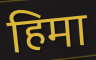
हिमा